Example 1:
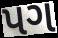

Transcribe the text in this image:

પગ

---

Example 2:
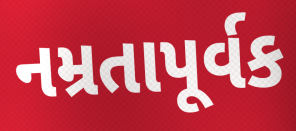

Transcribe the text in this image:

નમ્રતાપૂર્વક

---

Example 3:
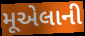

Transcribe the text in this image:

મૂએલાની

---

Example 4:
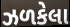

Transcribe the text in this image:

ઝળકેલા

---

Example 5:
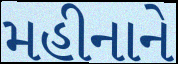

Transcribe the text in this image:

મહીનાને